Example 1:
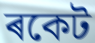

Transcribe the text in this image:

ৰকেট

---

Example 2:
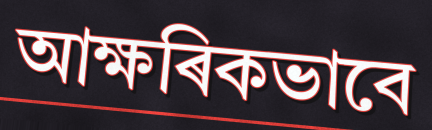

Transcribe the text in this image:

আক্ষৰিকভাবে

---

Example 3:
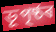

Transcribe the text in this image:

ভূপৃষ্ঠৰ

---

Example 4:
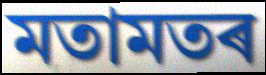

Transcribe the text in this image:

মতামতৰ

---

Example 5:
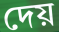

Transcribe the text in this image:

দেয়